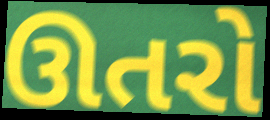
ઊતરો